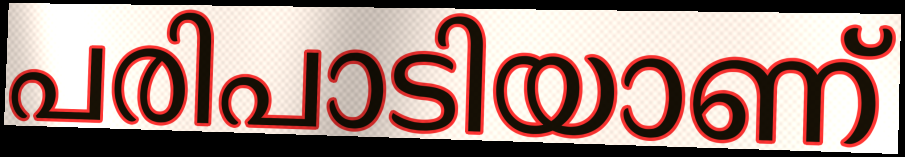
പരിപാടിയാണ്